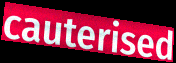
cauterised